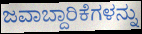
ಜವಾಬ್ದಾರಿಕೆಗಳನ್ನು